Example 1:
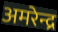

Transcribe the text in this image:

अमरेन्द्र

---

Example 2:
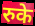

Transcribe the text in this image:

रुके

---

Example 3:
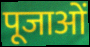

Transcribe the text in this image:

पूजाओं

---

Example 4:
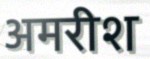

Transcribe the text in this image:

अमरीश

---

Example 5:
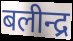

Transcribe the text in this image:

बलीन्द्र